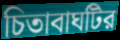
চিতাবাঘটির